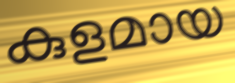
കുളമായ